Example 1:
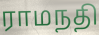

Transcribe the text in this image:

ராமநதி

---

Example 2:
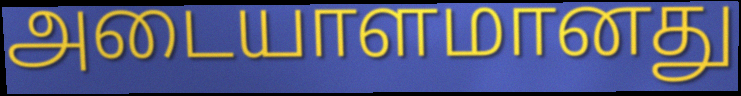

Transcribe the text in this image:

அடையாளமானது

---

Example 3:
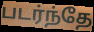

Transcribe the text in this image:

படர்ந்தே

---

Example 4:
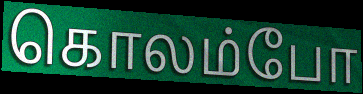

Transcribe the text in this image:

கொலம்போ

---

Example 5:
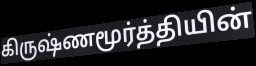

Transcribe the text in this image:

கிருஷ்ணமூர்த்தியின்